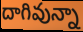
దాగివున్నా